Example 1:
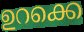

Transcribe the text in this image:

ഉറക്കെ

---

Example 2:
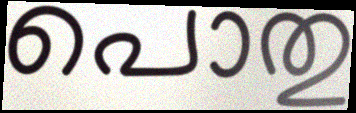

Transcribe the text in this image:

പൊതു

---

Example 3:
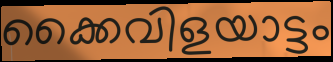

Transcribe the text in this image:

ക്കൈവിളയാട്ടം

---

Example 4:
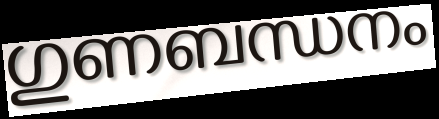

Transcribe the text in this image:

ഗുണബന്ധനം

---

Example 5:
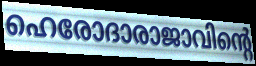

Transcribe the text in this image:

ഹെരോദാരാജാവിന്റെ